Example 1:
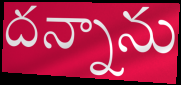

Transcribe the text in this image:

దన్నాను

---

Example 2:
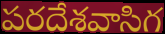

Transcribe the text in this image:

పరదేశవాసిగ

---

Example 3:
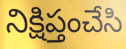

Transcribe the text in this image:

నిక్షిప్తంచేసి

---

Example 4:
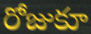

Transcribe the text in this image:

రోజుకూ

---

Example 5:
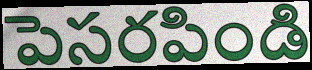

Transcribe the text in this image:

పెసరపిండి